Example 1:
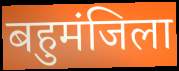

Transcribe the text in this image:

बहुमंजिला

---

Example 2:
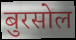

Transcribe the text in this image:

बुरसोल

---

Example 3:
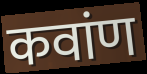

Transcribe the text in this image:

कवांण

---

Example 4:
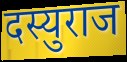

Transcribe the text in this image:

दस्युराज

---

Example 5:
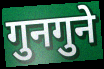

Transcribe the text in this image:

गुनगुने